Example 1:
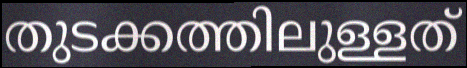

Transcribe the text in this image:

തുടക്കത്തിലുള്ളത്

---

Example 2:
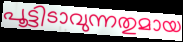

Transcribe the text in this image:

പൂട്ടിടാവുന്നതുമായ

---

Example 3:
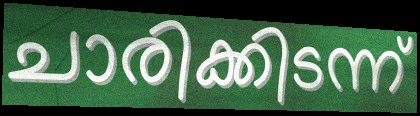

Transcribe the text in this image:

ചാരിക്കിടന്ന്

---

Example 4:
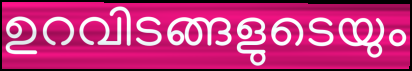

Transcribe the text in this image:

ഉറവിടങ്ങളുടെയും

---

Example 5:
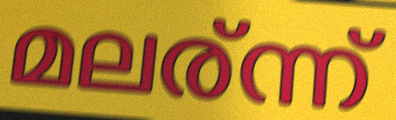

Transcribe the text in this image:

മലര്ന്ന്